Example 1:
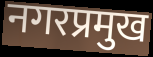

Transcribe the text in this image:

नगरप्रमुख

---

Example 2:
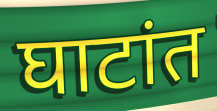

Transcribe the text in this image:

घाटांत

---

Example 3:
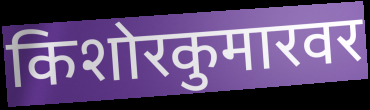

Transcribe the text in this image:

किशोरकुमारवर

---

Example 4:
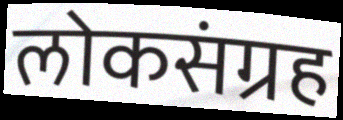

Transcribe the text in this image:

लोकसंग्रह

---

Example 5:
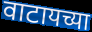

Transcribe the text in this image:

वाटायच्या